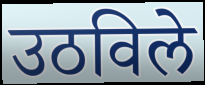
उठविले